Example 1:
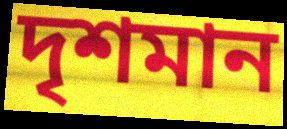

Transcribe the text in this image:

দৃশমান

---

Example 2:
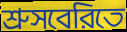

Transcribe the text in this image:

শ্রুসবেরিতে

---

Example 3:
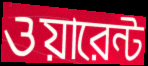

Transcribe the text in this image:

ওয়ারেন্ট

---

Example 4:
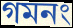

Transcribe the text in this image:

গমনং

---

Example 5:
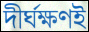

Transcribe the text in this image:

দীর্ঘক্ষণই